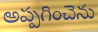
అప్పగించెను